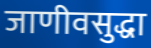
जाणीवसुद्धा